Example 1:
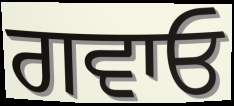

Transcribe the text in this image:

ਗਵਾਓ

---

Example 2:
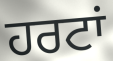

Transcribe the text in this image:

ਹਰਟਾਂ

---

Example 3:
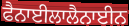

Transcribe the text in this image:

ਫੈਨਾਈਲਾਲੈਨਾਈਨ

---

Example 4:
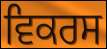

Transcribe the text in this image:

ਵਿਕਰਸ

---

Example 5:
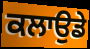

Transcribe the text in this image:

ਕਲਾਉਡੇ